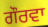
ਗੌਰਵਾ